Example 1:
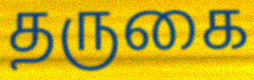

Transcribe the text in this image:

தருகை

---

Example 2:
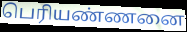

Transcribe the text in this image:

பெரியண்ணனை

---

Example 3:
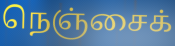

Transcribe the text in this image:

நெஞ்சைக்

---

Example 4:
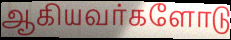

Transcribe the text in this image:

ஆகியவர்களோடு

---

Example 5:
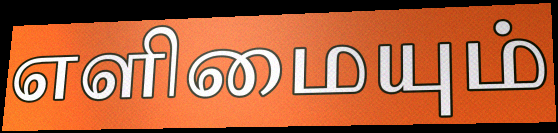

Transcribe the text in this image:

எளிமையும்